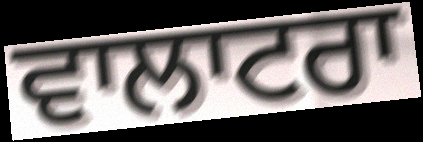
ਵਾਲਾਟਰਾ